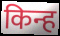
किन्ह